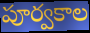
పూర్వకాల